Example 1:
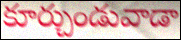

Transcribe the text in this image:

కూర్చుండువాడా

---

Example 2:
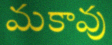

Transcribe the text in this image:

మకావు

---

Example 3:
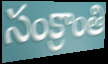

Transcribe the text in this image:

సంక్రాంతి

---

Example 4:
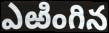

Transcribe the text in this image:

ఎఱింగిన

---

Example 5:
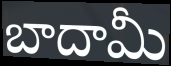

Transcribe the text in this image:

బాదామీ